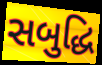
સબુદ્ધિ